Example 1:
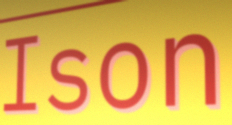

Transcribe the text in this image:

Ison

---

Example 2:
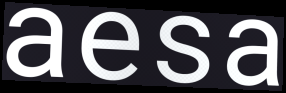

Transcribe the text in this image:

aesa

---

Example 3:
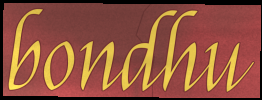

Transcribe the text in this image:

bondhu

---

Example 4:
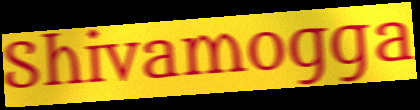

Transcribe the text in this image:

Shivamogga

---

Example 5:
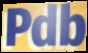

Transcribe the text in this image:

Pdb